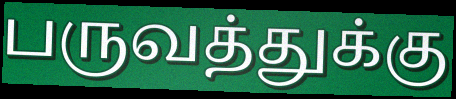
பருவத்துக்கு